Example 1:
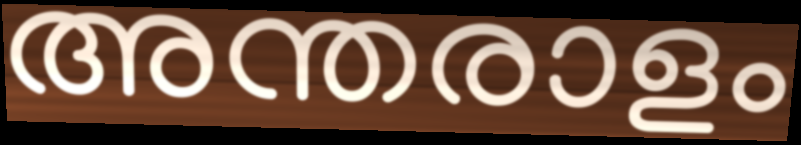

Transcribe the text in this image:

അന്തരാളം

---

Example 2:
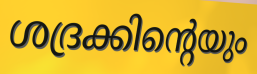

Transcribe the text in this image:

ശദ്രക്കിന്റെയും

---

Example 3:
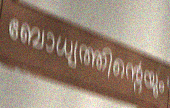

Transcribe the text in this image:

ബോധ്യത്തിന്റെയും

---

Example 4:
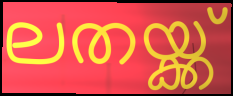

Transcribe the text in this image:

ലതയ്ക്ക്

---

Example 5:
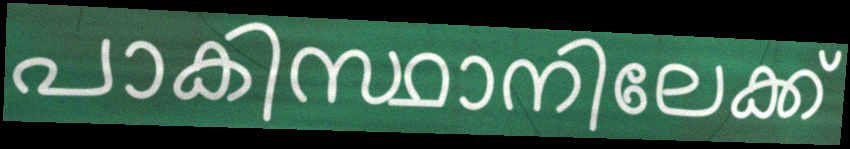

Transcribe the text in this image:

പാകിസ്ഥാനിലേക്ക്